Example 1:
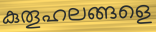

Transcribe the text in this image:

കുതൂഹലങ്ങളെ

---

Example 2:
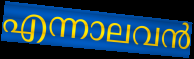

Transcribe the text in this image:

എന്നാലവൻ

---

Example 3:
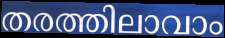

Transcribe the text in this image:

തരത്തിലാവാം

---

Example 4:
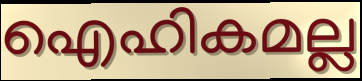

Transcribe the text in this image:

ഐഹികമല്ല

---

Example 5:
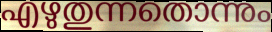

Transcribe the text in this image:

എഴുതുന്നതൊന്നും